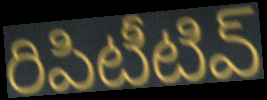
రిపిటీటివ్